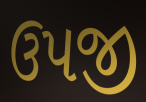
ઉપજી